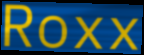
Roxx